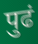
पुढं